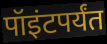
पॉइंटपर्यंत